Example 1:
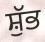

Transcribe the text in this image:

ਸ਼ੁੱਭ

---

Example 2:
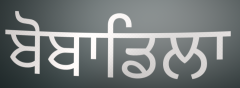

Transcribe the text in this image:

ਬੋਬਾਡਿਲਾ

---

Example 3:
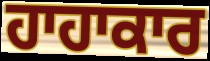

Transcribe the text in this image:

ਹਾਹਾਕਾਰ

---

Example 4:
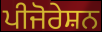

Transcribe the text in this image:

ਪੀਜੋਰੇਸ਼ਨ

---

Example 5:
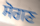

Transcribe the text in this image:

ਸੋਗਣ